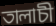
তালাচী